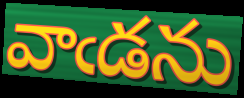
వాఁడను